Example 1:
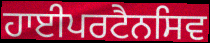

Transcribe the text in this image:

ਹਾਈਪਰਟੈਨਸਿਵ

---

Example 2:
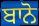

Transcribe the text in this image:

ਬਾਨੋ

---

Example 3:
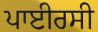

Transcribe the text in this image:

ਪਾਈਰਸੀ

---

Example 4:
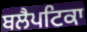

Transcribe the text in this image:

ਬਲੈਪਟਿਕਾ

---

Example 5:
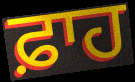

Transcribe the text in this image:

ਫ਼ਾਹ